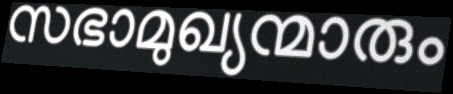
സഭാമുഖ്യന്മാരും